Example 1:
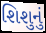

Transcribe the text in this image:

શિશુનું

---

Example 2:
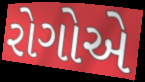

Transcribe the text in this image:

રોગોએ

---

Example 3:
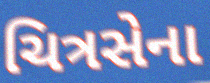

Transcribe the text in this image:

ચિત્રસેના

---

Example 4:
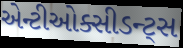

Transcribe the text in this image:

એન્ટીઓક્સીડન્ટ્સ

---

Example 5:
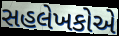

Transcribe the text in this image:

સહલેખકોએ